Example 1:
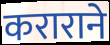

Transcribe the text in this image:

कराराने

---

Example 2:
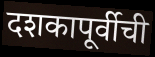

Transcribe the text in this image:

दशकापूर्वीची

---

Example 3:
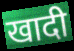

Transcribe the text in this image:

खादी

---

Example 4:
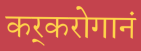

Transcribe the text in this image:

कर्करोगानं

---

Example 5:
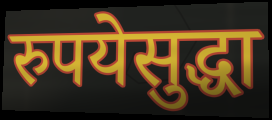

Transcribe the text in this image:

रुपयेसुद्धा